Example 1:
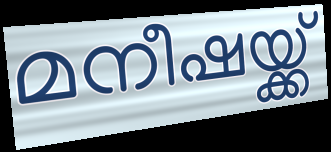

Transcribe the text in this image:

മനീഷയ്ക്ക്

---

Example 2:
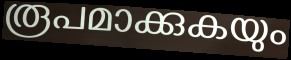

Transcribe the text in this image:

രൂപമാക്കുകയും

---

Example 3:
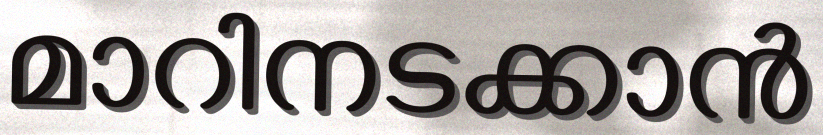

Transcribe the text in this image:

മാറിനടക്കാൻ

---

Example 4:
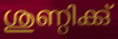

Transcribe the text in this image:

ശുണ്ഠിക്കു്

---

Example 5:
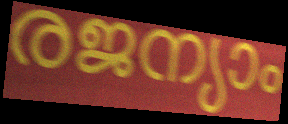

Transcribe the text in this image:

രജന്യാം